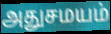
அதுசமயம்